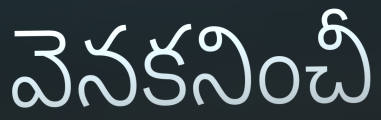
వెనకనించీ